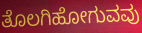
ತೊಲಗಿಹೋಗುವವು